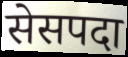
सेसपदा